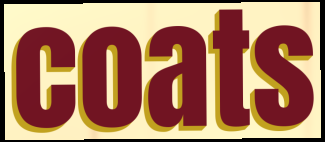
coats